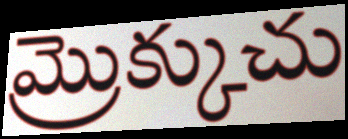
మ్రొక్కుచు